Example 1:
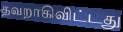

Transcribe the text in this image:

தவறாகிவிட்டது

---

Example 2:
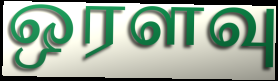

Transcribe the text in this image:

ஒரளவு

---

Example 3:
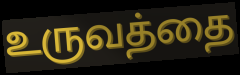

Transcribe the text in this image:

உருவத்தை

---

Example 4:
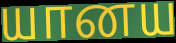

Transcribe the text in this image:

யானய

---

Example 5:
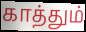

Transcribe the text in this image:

காத்தும்